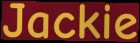
Jackie